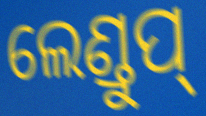
ଲେଣ୍ଡୁପ୍